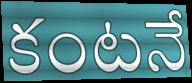
కంటనే